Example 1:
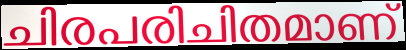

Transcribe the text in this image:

ചിരപരിചിതമാണ്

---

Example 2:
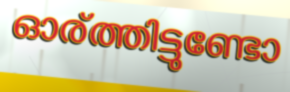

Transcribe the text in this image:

ഓര്ത്തിട്ടുണ്ടോ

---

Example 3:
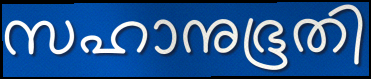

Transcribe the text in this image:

സഹാനുഭൂതി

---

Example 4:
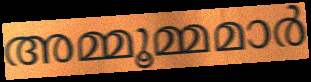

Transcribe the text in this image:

അമ്മൂമ്മമാർ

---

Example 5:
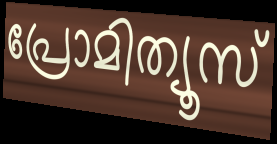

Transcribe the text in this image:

പ്രോമിത്യൂസ്